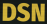
DSN